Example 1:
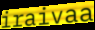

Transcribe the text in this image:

iraivaa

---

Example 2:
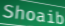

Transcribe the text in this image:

Shoaib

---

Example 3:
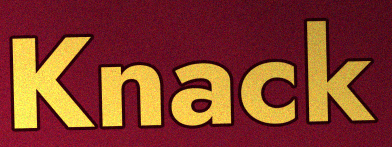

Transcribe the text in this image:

Knack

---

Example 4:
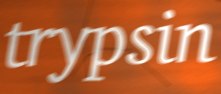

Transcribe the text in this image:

trypsin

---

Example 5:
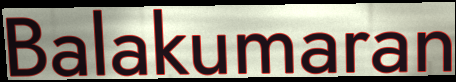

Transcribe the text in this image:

Balakumaran